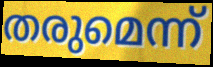
തരുമെന്ന്